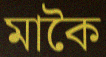
মাকৈ